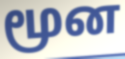
மூன